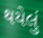
થયેલું